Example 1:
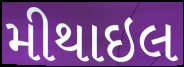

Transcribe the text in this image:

મીથાઇલ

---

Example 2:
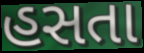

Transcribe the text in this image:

હસતા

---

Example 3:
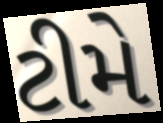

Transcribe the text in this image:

ટીમે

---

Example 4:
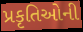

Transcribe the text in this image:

પ્રકૃતિઓની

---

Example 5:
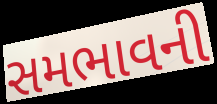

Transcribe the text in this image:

સમભાવની